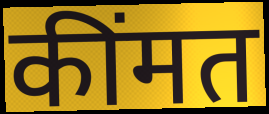
कींमत